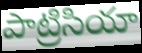
పాట్రిసియా